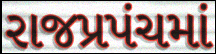
રાજપ્રપંચમાં